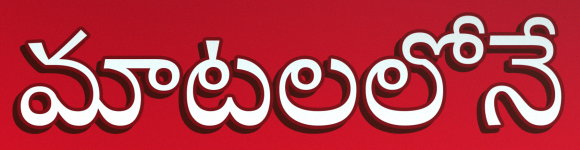
మాటలలోనే